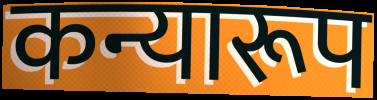
कन्यारूप